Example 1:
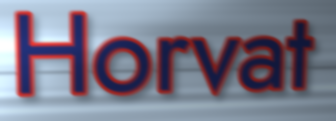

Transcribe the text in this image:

Horvat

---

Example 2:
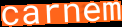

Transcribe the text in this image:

carnem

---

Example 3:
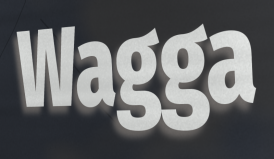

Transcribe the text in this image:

Wagga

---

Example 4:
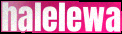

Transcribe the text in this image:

halelewa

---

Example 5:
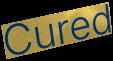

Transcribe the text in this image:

Cured